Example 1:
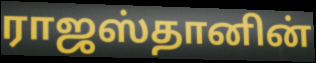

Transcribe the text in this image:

ராஜஸ்தானின்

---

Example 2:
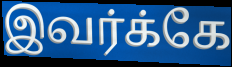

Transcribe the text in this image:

இவர்க்கே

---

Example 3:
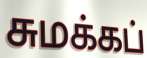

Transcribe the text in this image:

சுமக்கப்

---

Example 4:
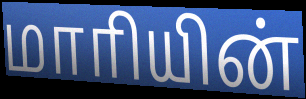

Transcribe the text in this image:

மாரியின்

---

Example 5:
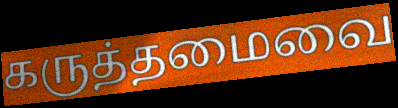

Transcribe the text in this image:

கருத்தமைவை